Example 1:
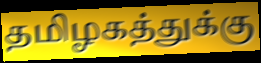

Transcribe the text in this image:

தமிழகத்துக்கு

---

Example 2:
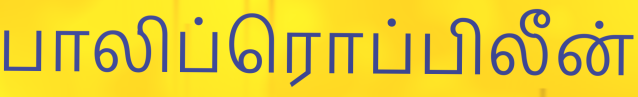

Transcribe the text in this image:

பாலிப்ரொப்பிலீன்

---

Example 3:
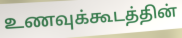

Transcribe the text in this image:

உணவுக்கூடத்தின்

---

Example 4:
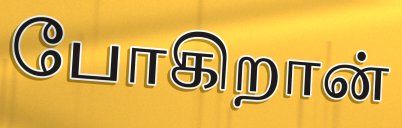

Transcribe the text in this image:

போகிறான்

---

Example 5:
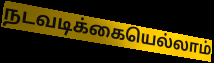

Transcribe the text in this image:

நடவடிக்கையெல்லாம்